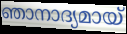
ഞാനാദ്യമായ്